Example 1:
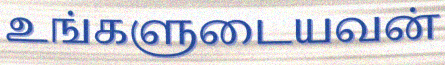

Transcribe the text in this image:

உங்களுடையவன்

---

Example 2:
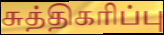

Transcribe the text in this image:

சுத்திகரிப்பு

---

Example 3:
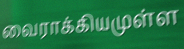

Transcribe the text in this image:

வைராக்கியமுள்ள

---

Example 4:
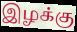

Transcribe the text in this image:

இழக்கு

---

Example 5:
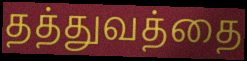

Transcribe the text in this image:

தத்துவத்தை